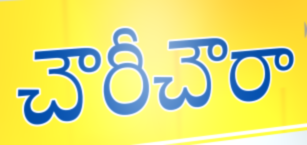
చౌరీచౌరా